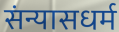
संन्यासधर्म